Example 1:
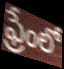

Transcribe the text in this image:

ఫ్రేంలో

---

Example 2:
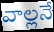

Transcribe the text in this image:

వాల్లనే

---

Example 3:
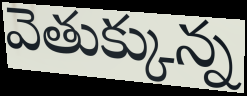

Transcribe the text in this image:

వెతుక్కున్న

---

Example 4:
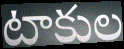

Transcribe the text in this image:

టాకుల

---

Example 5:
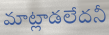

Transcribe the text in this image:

మాట్లాడలేదనీ